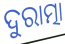
ଦୁରାତ୍ମା